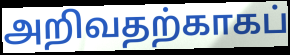
அறிவதற்காகப்